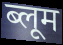
ब्लूम